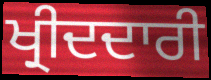
ਖ੍ਰੀਦਦਾਰੀ